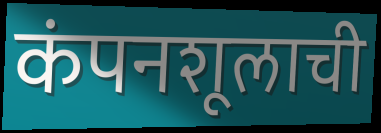
कंपनशूलाची